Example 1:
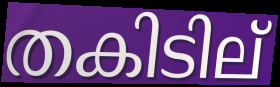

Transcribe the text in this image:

തകിടില്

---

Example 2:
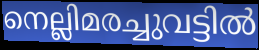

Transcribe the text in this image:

നെല്ലിമരച്ചുവട്ടിൽ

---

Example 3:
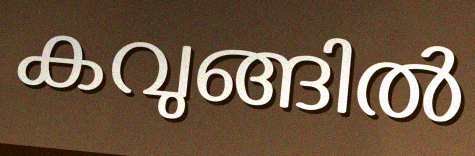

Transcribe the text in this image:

കവുങ്ങിൽ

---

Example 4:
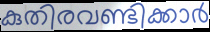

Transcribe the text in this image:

കുതിരവണ്ടിക്കാർ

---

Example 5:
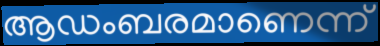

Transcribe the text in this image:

ആഡംബരമാണെന്ന്